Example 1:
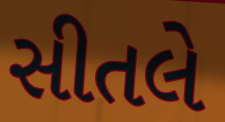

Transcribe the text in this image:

સીતલે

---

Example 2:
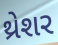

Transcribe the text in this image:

થ્રેશર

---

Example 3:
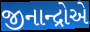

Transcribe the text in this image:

જીનાન્દ્રોએ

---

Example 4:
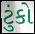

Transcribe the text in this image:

ટુંકો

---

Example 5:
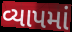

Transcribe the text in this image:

વ્યાપમાં